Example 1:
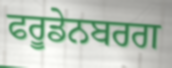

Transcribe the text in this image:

ਫਰੂਡੇਨਬਰਗ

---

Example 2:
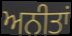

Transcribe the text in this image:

ਅਨੀਤਾਂ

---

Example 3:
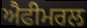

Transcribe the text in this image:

ਐਫੀਮਰਲ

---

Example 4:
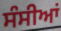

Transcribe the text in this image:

ਸੰਸੀਆਂ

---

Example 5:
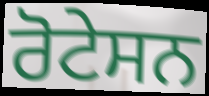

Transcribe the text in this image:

ਰੋਟੇਸਨ